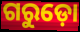
ଗରୁଡ଼ୋ